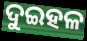
ଦୁଇହଳ